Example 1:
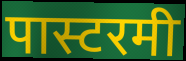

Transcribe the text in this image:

पास्टरमी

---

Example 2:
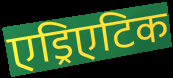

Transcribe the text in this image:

एड्रिएटिक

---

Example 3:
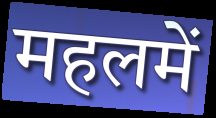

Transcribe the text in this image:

महलमें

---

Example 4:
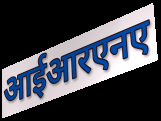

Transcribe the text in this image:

आईआरएनए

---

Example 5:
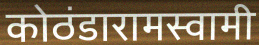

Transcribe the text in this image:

कोठंडारामस्वामी